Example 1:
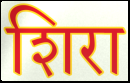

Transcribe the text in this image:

शिरा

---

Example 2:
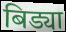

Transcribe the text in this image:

बिड्या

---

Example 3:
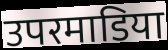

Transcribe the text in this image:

उपरमाडिया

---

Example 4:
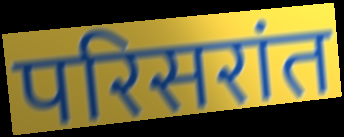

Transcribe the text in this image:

परिसरांत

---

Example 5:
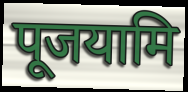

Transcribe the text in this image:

पूजयामि